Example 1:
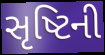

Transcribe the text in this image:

સૃષ્ટિની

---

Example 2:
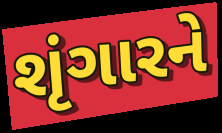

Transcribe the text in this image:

શૃંગારને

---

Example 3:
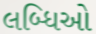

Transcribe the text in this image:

લબ્ધિઓ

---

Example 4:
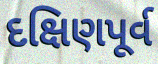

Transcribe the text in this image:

દક્ષિણપૂર્વ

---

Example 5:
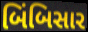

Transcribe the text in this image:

બિંબિસાર